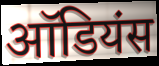
ऑडियंस